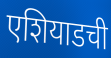
एशियाडची